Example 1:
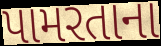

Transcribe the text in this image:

પામરતાના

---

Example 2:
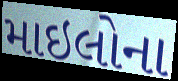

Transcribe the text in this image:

માઇલોના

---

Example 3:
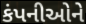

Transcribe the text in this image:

કંપનીઓને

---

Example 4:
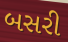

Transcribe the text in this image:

બસરી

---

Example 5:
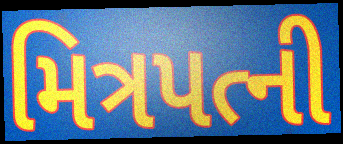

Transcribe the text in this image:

મિત્રપત્ની